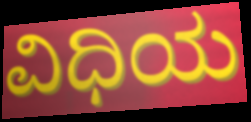
ವಿಧಿಯ